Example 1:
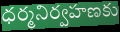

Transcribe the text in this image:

ధర్మనిర్వహణకు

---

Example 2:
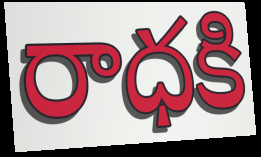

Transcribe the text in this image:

రాధకి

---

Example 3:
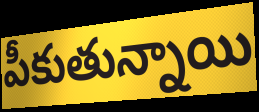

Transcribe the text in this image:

పీకుతున్నాయి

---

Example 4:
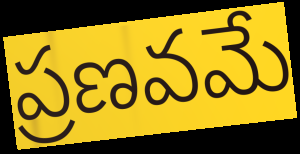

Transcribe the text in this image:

ప్రణవమే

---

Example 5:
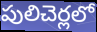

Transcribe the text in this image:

పులిచెర్లలో